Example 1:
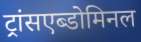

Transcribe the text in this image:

ट्रांसएब्डोमिनल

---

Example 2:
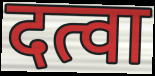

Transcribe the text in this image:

दत्वा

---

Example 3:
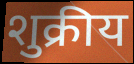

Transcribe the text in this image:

शुक्रीय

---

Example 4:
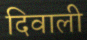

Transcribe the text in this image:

दिवाली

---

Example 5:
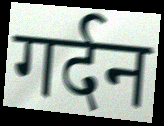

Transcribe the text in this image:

गर्दन